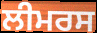
ਲੀਮਰਸ